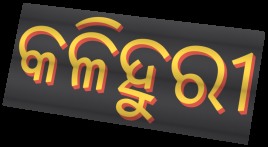
କଳିହୁରୀ